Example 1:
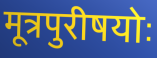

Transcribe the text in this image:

मूत्रपुरीषयोः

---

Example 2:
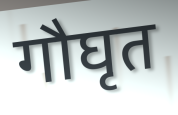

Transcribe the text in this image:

गौघृत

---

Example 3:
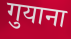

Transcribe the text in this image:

गुयाना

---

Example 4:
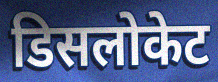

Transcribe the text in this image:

डिसलोकेट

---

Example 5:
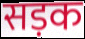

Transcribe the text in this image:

सड़क